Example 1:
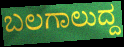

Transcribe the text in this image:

ಬಲಗಾಲುದ್ದ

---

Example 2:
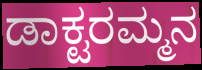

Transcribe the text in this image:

ಡಾಕ್ಟರಮ್ಮನ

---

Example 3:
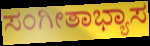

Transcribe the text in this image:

ಸಂಗೀತಾಭ್ಯಾಸ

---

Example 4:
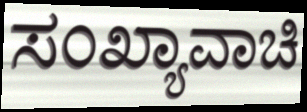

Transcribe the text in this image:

ಸಂಖ್ಯಾವಾಚಿ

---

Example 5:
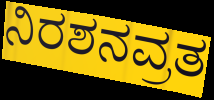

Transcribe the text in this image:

ನಿರಶನವ್ರತ